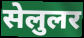
सेलुलर